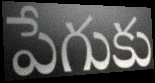
పేగుకు